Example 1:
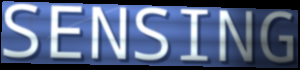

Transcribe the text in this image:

SENSING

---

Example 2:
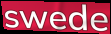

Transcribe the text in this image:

swede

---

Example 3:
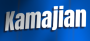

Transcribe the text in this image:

Kamajian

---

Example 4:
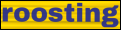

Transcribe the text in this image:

roosting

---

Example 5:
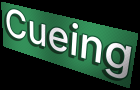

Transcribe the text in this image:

Cueing